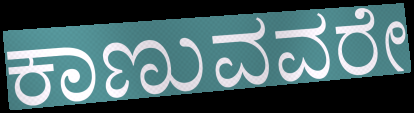
ಕಾಣುವವರೇ